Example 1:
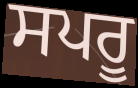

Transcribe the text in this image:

ਸਪਰੂ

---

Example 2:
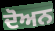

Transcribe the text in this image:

ਦੋਅਨ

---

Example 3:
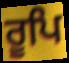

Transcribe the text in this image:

ਰੂਪਿ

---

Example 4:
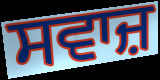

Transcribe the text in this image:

ਸਵਾਜ਼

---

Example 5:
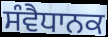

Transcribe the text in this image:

ਸੰਵੈਧਾਨਕ